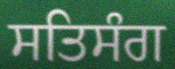
ਸਤਿਸੰਗ